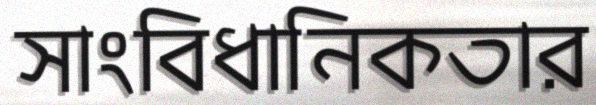
সাংবিধানিকতার